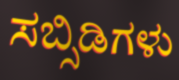
ಸಬ್ಸಿಡಿಗಳು